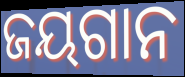
ଜୟଗାନ